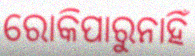
ରୋକିପାରୁନାହିଁ